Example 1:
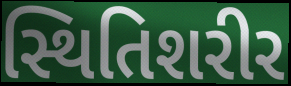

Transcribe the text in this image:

સ્થિતિશરીર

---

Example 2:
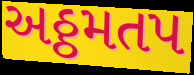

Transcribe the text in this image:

અઠ્ઠમતપ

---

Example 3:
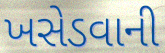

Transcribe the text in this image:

ખસેડવાની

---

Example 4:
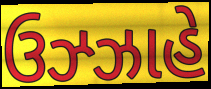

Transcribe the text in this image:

ઉઝ્ઝાહે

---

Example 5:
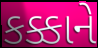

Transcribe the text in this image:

કક્કાને